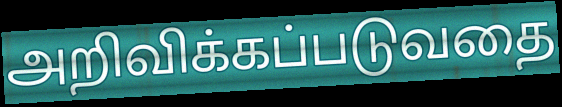
அறிவிக்கப்படுவதை